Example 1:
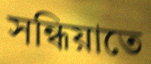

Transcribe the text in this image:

সন্ধিয়াতে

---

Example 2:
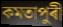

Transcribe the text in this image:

কমতাপুৰী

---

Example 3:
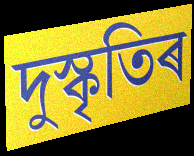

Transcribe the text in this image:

দুস্কৃতিৰ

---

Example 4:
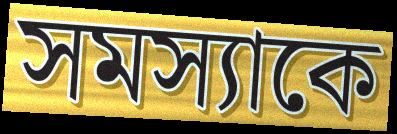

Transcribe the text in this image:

সমস্যাকে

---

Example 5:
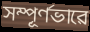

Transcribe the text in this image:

সম্পূৰ্ণভাৱে